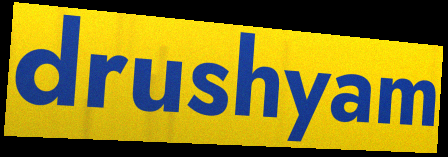
drushyam